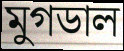
মুগডাল